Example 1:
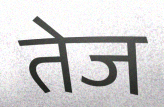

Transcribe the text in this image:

तेज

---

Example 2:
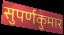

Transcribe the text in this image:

सुपर्णकुमार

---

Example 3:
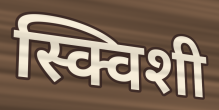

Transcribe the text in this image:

स्क्विशी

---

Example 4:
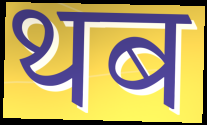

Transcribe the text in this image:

थब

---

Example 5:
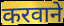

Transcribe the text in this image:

करवाने